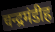
चन्द्रमंडीह